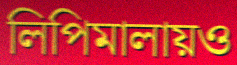
লিপিমালায়ও